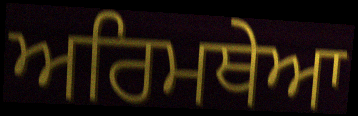
ਅਰਿਮਥੇਆ